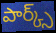
పార్క్స్